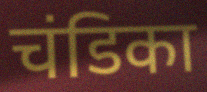
चंडिका